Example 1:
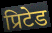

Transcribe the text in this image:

प्रिटेड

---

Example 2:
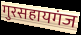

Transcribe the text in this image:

गुरसहायगंज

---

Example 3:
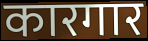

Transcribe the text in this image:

कारगार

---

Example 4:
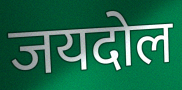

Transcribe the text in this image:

जयदोल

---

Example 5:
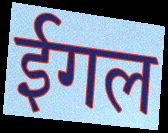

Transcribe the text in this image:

ईगल